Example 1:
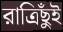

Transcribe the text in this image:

রাত্রিছুঁই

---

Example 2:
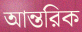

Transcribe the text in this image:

আন্তরিক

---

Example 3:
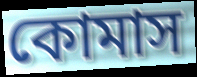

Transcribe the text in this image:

কোমাস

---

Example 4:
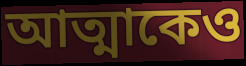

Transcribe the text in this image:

আত্মাকেও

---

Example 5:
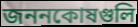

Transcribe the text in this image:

জননকোষগুলি